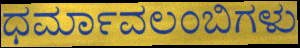
ಧರ್ಮಾವಲಂಬಿಗಳು